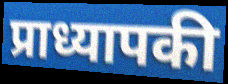
प्राध्यापकी